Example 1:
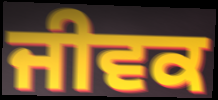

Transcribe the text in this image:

ਜੀਵਕ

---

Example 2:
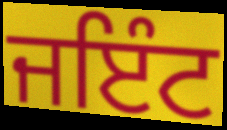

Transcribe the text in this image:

ਜਇੰਟ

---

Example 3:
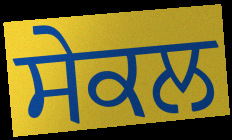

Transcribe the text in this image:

ਸੇਕਲ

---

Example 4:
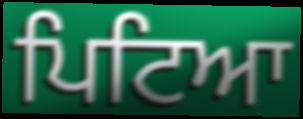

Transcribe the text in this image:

ਪਿਟਿਆ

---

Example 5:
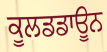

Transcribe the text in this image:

ਕੂਲਡਡਾਊਨ